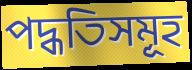
পদ্ধতিসমূহ